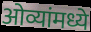
ओव्यांमध्ये